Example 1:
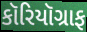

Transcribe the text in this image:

કૉરિયૉગ્રાફ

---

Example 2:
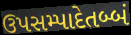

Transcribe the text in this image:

ઉપસમ્પાદેતબ્બં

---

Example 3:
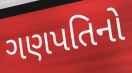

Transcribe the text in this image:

ગણપતિનો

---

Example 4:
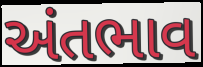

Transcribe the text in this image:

અંતભાવ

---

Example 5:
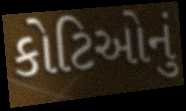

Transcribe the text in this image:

કોટિઓનું